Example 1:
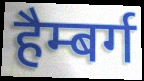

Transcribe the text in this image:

हैम्बर्ग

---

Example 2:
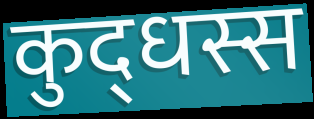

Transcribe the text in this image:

कुद्धस्स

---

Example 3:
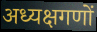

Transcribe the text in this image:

अध्यक्षगणों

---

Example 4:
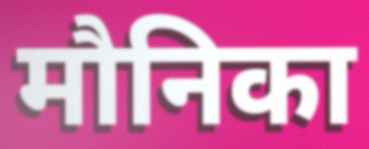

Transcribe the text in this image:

मौनिका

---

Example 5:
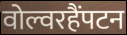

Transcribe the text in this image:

वोल्वरहैंपटन